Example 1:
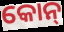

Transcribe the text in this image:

କୋନ୍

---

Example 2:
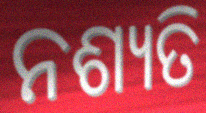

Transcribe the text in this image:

ନଶ୍ୟତି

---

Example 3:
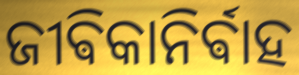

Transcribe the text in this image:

ଜୀଵିକାନିର୍ଵାହ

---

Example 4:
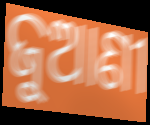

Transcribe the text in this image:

ଜୁଆଣୀ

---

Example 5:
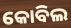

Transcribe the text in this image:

କୋବିଲ